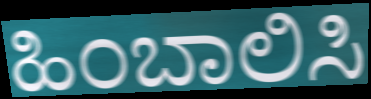
ಹಿಂಬಾಲಿಸಿ